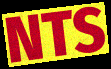
NTS